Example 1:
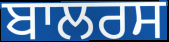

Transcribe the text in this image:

ਬਾਲਰਸ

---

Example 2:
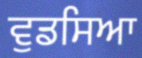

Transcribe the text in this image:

ਵੁਡਸਿਆ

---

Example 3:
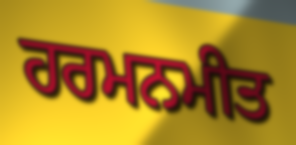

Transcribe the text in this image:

ਹਰਮਨਮੀਤ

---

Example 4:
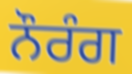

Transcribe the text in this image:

ਨੌਰੰਗ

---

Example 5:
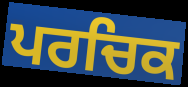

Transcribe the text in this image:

ਪਰਚਿਕ